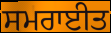
ਸਮਰਾਈਤ